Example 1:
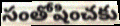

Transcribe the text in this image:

సంతోషించకు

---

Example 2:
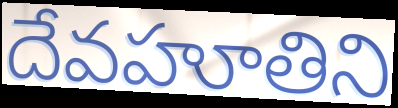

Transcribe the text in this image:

దేవహూతిని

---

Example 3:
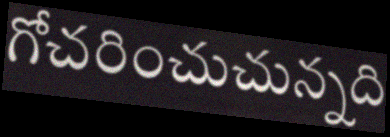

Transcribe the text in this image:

గోచరించుచున్నది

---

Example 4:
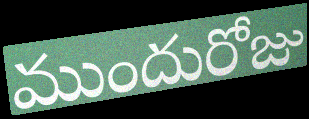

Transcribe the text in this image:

ముందురోజు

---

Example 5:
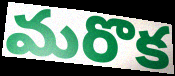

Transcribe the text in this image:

మరొక